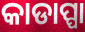
କାଡାପ୍ପା